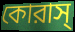
কোরাস্